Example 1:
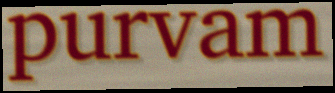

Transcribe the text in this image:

purvam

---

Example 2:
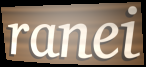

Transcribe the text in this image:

ranei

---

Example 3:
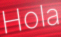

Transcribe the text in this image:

Hola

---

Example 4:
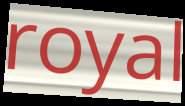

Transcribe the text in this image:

royal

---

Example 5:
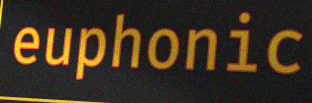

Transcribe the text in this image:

euphonic